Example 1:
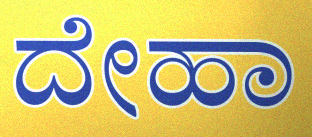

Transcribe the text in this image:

ದೇಹಾ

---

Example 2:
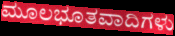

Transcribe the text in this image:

ಮೂಲಭೂತವಾದಿಗಳು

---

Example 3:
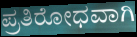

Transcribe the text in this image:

ಪ್ರತಿರೋಧವಾಗಿ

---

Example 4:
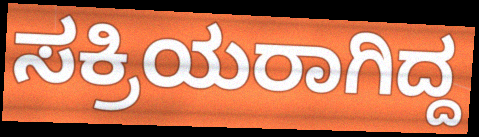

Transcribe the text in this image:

ಸಕ್ರಿಯರಾಗಿದ್ದ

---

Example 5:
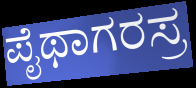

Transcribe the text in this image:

ಪೈಥಾಗರಸ್ರ